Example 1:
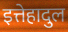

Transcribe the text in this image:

इत्तेहादुल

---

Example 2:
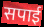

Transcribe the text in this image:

सपाई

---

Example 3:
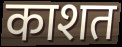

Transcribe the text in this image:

काशत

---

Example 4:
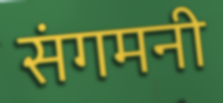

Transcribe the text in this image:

संगमनी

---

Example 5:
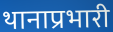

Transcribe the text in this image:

थानाप्रभारी